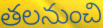
తలనుంచి